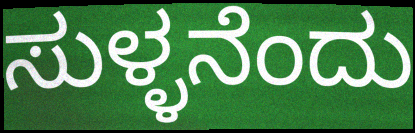
ಸುಳ್ಳನೆಂದು